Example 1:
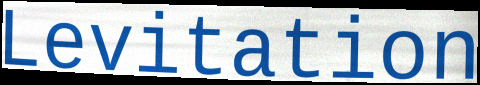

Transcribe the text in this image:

Levitation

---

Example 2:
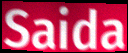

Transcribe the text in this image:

Saida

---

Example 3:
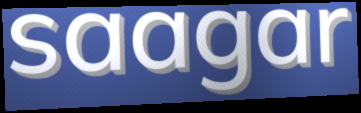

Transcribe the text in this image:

saagar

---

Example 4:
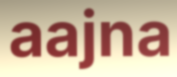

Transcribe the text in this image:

aajna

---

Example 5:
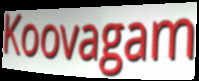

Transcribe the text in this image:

Koovagam